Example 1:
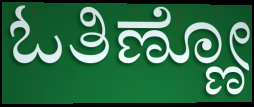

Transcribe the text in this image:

ಓತಿಣ್ಣೋ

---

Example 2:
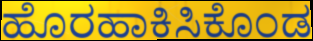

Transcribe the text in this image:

ಹೊರಹಾಕಿಸಿಕೊಂಡ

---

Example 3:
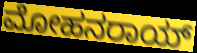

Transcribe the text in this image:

ಮೋಹನರಾಯ್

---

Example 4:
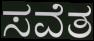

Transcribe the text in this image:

ಸವೆತ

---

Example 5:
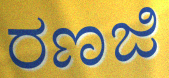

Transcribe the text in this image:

ರಣಜಿ